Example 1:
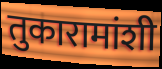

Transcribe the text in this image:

तुकारामांशी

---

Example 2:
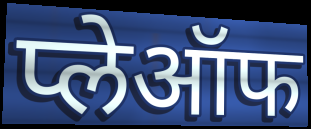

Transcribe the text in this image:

प्लेऑफ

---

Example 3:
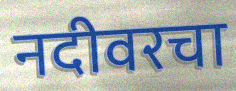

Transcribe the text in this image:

नदीवरचा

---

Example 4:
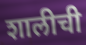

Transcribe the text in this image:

शालीची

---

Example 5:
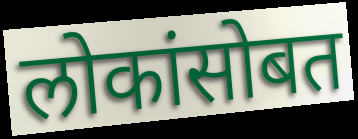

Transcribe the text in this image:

लोकांसोबत